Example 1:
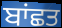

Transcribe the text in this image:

ਬਾਂਛਤ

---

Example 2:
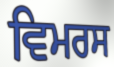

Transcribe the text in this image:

ਵਿਮਰਸ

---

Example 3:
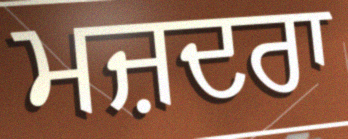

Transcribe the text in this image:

ਮਜ਼ਦਰਾ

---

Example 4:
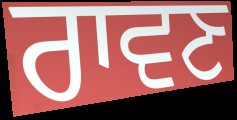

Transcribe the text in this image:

ਰਾਵਣ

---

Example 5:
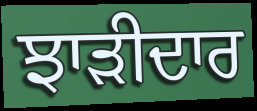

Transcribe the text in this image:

ਝਾੜੀਦਾਰ